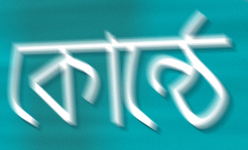
কোন্ঠে